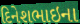
દિનેશભાઇના